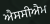
ਐਸਸੀਐਮ